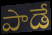
పాడే